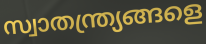
സ്വാതന്ത്ര്യങ്ങളെ